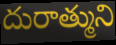
దురాత్ముని